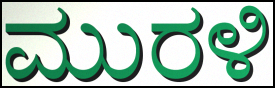
ಮುರಳಿ